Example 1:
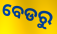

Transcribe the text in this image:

ବେଡରୁ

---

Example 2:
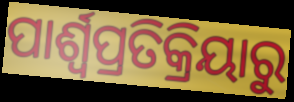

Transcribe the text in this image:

ପାର୍ଶ୍ୱପ୍ରତିକ୍ରିୟାରୁ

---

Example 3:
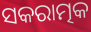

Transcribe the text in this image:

ସକରାତ୍ମକ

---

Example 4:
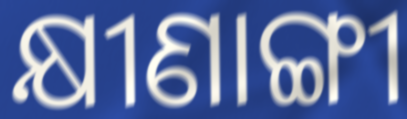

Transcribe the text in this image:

କ୍ଷୀଣାଙ୍ଗୀ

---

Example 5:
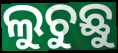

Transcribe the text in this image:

ଲୁଚୁଛୁ